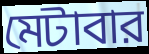
মেটাবার